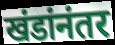
खंडांनंतर